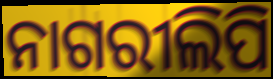
ନାଗରୀଲିପି